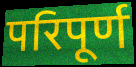
परिपूर्ण